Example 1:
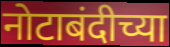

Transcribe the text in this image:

नोटाबंदीच्या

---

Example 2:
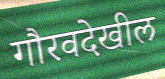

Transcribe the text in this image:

गौरवदेखील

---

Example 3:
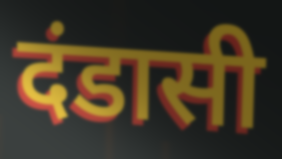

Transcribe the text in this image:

दंडासी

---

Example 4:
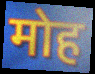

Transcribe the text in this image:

मोह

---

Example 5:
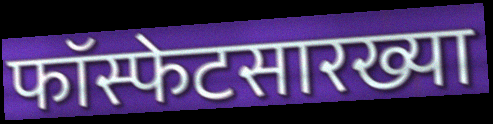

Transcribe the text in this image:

फॉस्फेटसारख्या